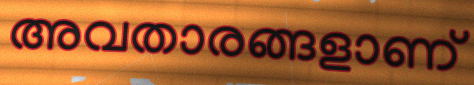
അവതാരങ്ങളാണ്